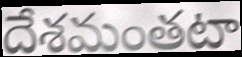
దేశమంతటా